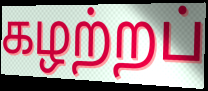
கழற்றப்